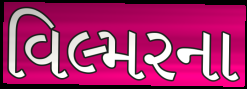
વિલ્મરના